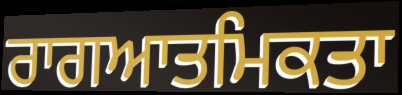
ਰਾਗਆਤਮਿਕਤਾ